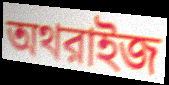
অথরাইজ